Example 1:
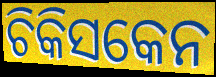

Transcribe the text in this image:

ଚିକିସକେନ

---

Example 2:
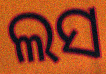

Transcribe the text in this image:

ଲସ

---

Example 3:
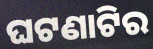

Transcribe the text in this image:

ଘଟଣାଟିର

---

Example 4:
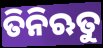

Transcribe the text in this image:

ତିନିଋତୁ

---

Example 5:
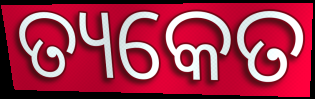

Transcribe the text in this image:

ତ୍ୟକେତ